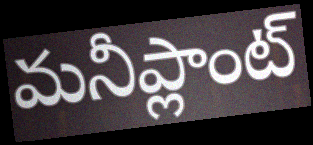
మనీప్లాంట్